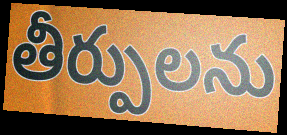
తీర్పులను